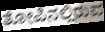
ತೋಪಿನಲ್ಲಿರುವ